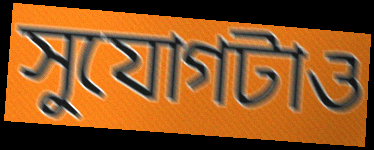
সুযোগটাও